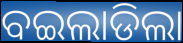
ବଇଲାଡିଲା